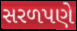
સરળપણે